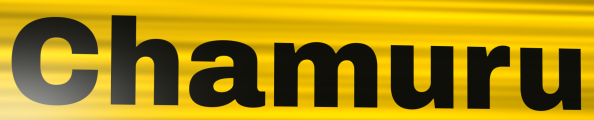
Chamuru